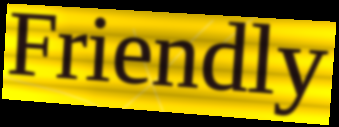
Friendly